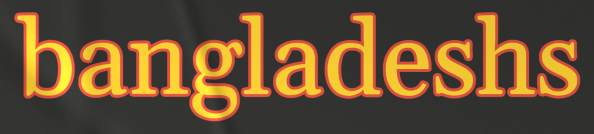
bangladeshs